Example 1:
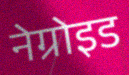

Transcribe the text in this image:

नेग्रोइड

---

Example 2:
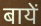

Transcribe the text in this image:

बायें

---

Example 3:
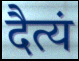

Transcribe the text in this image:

दैत्यं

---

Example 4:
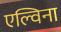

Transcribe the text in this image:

एल्विना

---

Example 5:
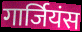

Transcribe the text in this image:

गार्जियंस